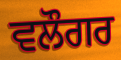
ਵਲੌਗਰ